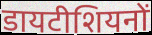
डायटीशियनों